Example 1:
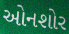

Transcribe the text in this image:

ઓનશોર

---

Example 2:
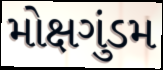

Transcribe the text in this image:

મોક્ષગુંડમ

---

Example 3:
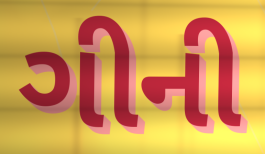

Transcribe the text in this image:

ગીની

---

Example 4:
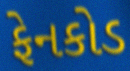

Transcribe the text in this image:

ફેનકોડ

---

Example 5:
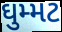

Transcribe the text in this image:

ઘુમ્મટ